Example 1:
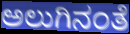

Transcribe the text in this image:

ಅಲುಗಿನಂತೆ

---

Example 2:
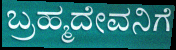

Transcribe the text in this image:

ಬ್ರಹ್ಮದೇವನಿಗೆ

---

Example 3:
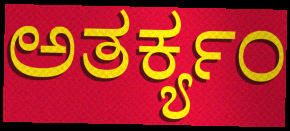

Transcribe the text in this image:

ಅತರ್ಕ್ಯಂ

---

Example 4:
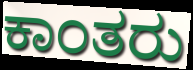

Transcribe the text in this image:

ಕಾಂತರು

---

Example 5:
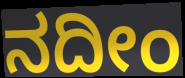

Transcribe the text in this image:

ನದೀಂ